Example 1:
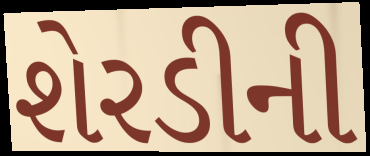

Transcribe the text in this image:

શેરડીની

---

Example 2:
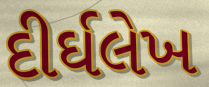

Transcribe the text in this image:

દીર્ઘલેખ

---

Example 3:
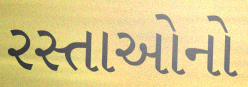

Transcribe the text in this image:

રસ્તાઓનો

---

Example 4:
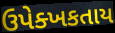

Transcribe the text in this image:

ઉપેક્ખકતાય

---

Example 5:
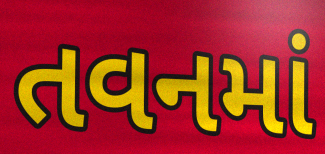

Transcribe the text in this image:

તવનમાં